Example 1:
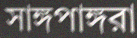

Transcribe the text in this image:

সাঙ্গপাঙ্গরা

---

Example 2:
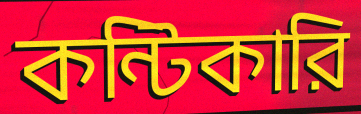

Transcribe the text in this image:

কন্টিকারি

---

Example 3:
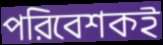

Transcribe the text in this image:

পরিবেশকই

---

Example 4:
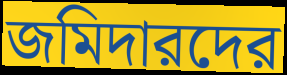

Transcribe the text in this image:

জমিদারদের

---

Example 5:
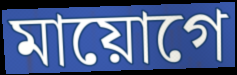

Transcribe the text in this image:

মায়োগে